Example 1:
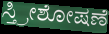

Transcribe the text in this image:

ಸ್ತ್ರೀಶೋಷಣೆ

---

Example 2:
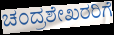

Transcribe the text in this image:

ಚಂದ್ರಶೇಖರರಿಗೆ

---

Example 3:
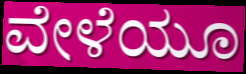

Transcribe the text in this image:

ವೇಳೆಯೂ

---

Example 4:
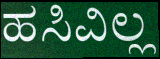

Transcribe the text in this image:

ಹಸಿವಿಲ್ಲ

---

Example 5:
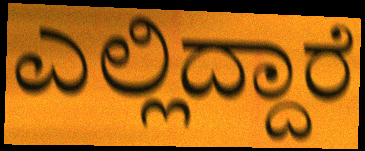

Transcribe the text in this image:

ಎಲ್ಲಿದ್ದಾರೆ